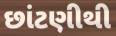
છાંટણીથી